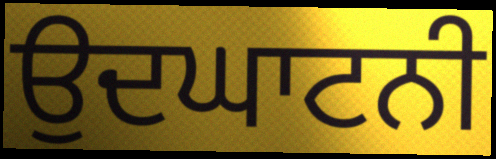
ਉਦਘਾਟਨੀ